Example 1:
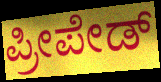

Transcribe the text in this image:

ಪ್ರೀಪೇಡ್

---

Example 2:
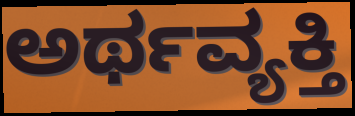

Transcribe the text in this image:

ಅರ್ಥವ್ಯಕ್ತಿ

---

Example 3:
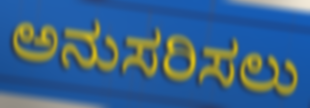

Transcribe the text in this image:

ಅನುಸರಿಸಲು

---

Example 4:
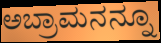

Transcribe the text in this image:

ಅಬ್ರಾಮನನ್ನೂ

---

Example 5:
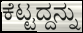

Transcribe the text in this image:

ಕೆಟ್ಟದ್ದನ್ನು